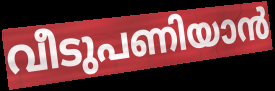
വീടുപണിയാൻ